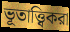
ভূতাত্ত্বিকরা